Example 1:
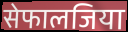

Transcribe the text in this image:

सेफालजिया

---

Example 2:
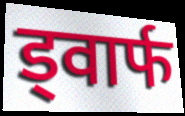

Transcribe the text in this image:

ड्वार्फ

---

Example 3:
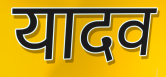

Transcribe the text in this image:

यादव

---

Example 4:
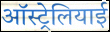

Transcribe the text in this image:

ऑस्ट्रेलियाई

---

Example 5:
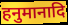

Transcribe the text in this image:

हनुमानादि